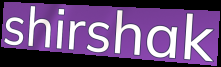
shirshak